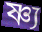
ষ্ণ্য